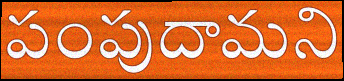
పంపుదామని